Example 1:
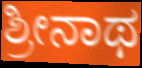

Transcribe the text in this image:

ಶ್ರೀನಾಥ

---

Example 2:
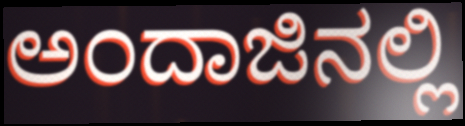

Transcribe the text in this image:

ಅಂದಾಜಿನಲ್ಲಿ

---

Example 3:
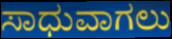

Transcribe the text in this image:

ಸಾಧುವಾಗಲು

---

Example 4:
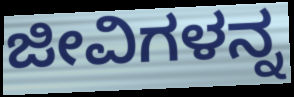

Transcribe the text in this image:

ಜೀವಿಗಳನ್ನ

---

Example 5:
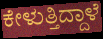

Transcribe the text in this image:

ಕೇಳುತ್ತಿದ್ದಾಳೆ